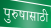
पुरुषासाठी